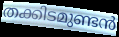
തക്കിടമുണ്ടൻ